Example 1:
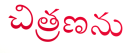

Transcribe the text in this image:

చిత్రణను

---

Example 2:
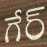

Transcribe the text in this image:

గేర్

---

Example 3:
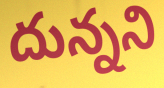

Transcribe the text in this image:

దున్నని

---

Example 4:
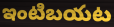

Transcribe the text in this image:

ఇంటిబయట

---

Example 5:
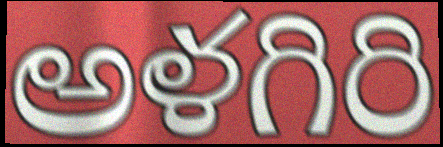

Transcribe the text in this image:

అళగిరి